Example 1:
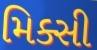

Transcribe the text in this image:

મિક્સી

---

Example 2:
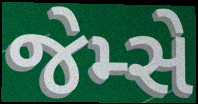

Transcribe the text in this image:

જેમ્સે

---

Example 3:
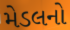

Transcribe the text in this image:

મેડલનો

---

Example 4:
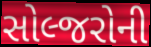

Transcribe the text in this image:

સોલ્જરોની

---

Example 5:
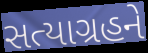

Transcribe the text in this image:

સત્યાગ્રહને